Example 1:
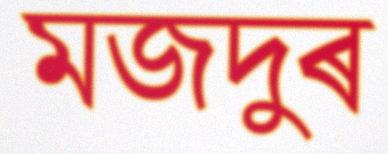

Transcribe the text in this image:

মজদুৰ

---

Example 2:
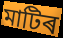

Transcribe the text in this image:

মাটিৰ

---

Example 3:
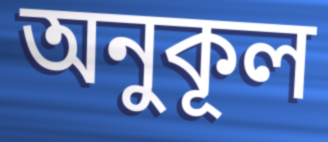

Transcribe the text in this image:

অনুকূল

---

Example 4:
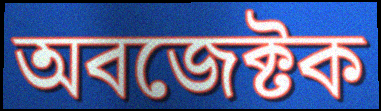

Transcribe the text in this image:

অবজেক্টক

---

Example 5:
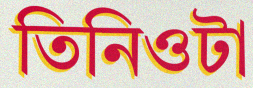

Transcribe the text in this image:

তিনিওটা